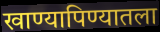
खाण्यापिण्यातला